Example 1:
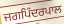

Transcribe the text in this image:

ਜਗਪਿੰਦਰਪਾਲ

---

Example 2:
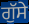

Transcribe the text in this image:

ਗੁੱਸੇ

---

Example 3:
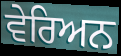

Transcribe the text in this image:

ਵੇਰਿਅਨ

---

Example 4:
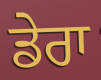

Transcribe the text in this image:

ਡੇਰਾ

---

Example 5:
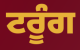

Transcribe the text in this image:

ਟਰੂੰਗ